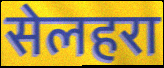
सेलहरा